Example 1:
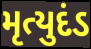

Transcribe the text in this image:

મૃત્યુદંડ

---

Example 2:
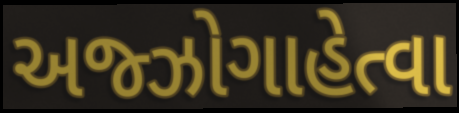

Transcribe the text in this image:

અજ્ઝોગાહેત્વા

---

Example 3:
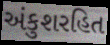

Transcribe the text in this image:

અંકુશરહિત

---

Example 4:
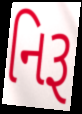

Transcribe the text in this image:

નિરૂ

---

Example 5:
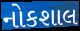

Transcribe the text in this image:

નોકશાલ